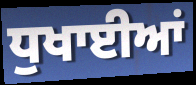
ਧੁਖਾਈਆਂ